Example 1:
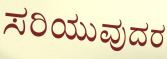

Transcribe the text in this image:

ಸರಿಯುವುದರ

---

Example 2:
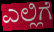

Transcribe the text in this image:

ಎಲ್ಲಿಗೆ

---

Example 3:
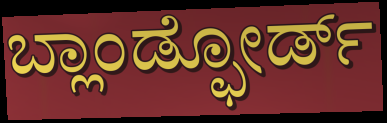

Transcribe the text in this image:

ಬ್ಲಾಂಡ್ಫೋರ್ಡ್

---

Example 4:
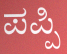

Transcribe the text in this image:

ಪಪ್ಪಿ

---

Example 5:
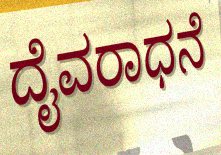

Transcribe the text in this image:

ದೈವರಾಧನೆ